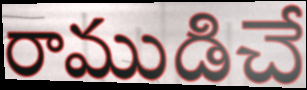
రాముడిచే